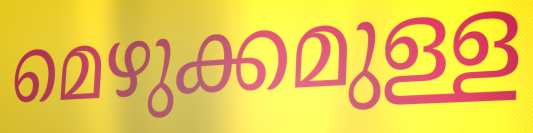
മെഴുക്കമുള്ള